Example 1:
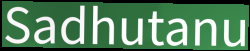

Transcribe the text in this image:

Sadhutanu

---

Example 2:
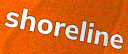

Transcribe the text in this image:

shoreline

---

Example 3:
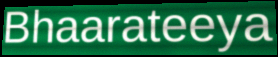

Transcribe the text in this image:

Bhaarateeya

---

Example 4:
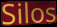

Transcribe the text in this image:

Silos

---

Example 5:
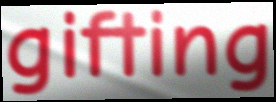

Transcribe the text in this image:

gifting